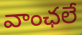
వాంఛలే